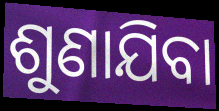
ଶୁଣାଯିବା